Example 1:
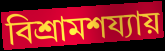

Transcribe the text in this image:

বিশ্রামশয্যায়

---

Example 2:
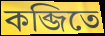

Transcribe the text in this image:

কব্জিতে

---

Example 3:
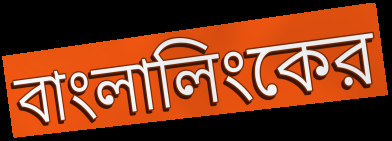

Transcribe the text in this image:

বাংলালিংকের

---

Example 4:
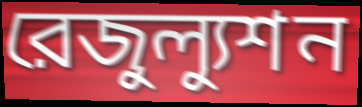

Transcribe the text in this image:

রেজুল্যুশন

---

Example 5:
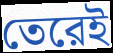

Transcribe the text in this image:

তেরেই